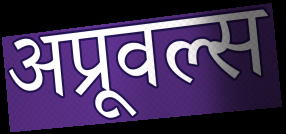
अप्रूवल्स